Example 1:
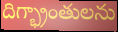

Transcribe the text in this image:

దిగ్భ్రాంతులను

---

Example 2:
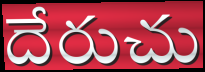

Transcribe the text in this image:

దేరుచు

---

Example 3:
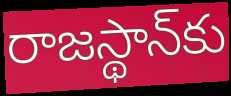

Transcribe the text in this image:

రాజస్థాన్‌కు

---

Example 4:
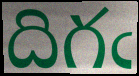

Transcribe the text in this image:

దిగఁ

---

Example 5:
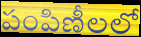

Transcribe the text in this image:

పంపిణీలలో